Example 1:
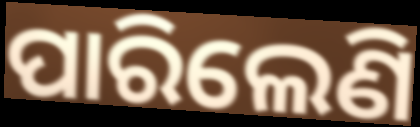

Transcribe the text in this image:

ପାରିଲେଣି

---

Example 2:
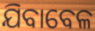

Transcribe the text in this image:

ଯିବାବେଳ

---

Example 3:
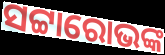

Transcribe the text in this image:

ସଟ୍ଟାରୋଭଙ୍କ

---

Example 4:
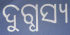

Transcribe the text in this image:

ଦୁଗ୍ଧସ୍ୟ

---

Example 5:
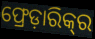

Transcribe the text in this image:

ଫ୍ରେଡ଼ାରିକ୍‍ର